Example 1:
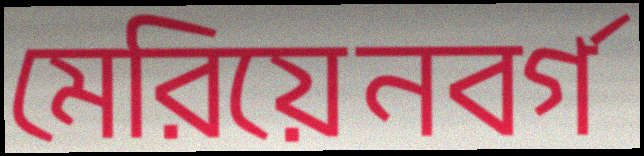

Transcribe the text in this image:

মেরিয়েনবর্গ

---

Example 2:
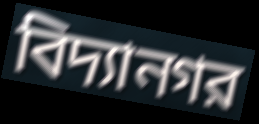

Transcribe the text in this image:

বিদ্যানগর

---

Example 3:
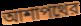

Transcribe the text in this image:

আশাপথের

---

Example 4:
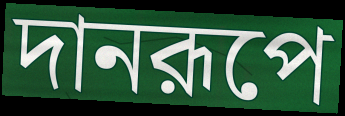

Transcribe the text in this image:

দানরূপে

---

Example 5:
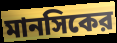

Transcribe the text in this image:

মানসিকের